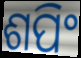
ଶପିଂ